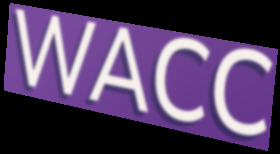
WACC